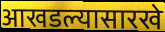
आखडल्यासारखे